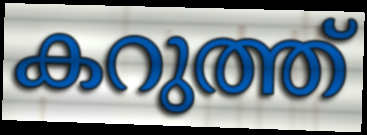
കറുത്ത്